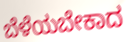
ಬೆಳೆಯಬೇಕಾದ